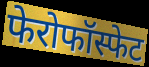
फेरोफॉस्फेट